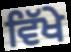
ਵਿੱਖੇ